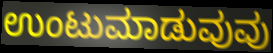
ಉಂಟುಮಾಡುವುವು